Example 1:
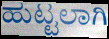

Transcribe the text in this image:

ಹುಟ್ಟಲಾಗಿ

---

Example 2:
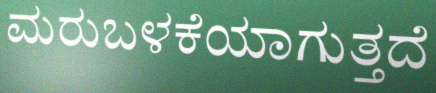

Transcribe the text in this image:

ಮರುಬಳಕೆಯಾಗುತ್ತದೆ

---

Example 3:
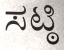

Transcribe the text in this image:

ಸಟ್ಠಿ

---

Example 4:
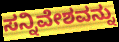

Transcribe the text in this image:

ಸನ್ನಿವೇಶವನ್ನು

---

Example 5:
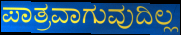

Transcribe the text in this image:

ಪಾತ್ರವಾಗುವುದಿಲ್ಲ